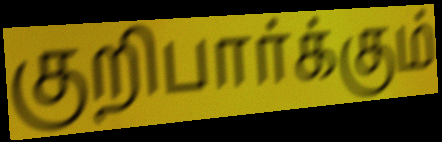
குறிபார்க்கும்